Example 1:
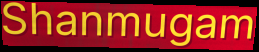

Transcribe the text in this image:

Shanmugam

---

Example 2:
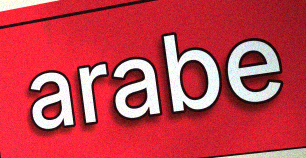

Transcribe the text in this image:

arabe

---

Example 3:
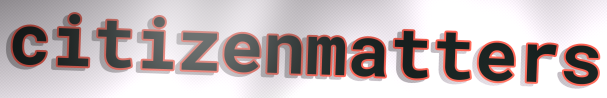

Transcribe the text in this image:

citizenmatters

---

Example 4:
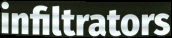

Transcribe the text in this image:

infiltrators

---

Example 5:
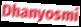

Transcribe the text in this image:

Dhanyosmi